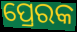
ପ୍ରେରକ